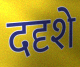
ददृशे